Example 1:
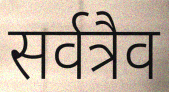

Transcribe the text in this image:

सर्वत्रैव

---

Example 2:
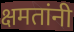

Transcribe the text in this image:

क्षमतांनी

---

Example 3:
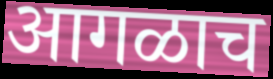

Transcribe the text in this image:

आगळाच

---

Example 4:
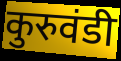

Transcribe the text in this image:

कुरुवंडी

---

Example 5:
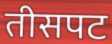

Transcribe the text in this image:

तीसपट